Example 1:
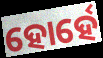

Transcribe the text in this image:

ହୋର୍ହେ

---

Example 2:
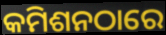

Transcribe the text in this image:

କମିଶନଠାରେ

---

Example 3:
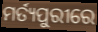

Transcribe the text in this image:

ମର୍ତ୍ୟପୁରୀରେ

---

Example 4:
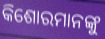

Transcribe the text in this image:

କିଶୋରମାନଙ୍କୁ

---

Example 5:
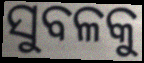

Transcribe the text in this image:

ସୁବଳକୁ